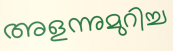
അളന്നുമുറിച്ച